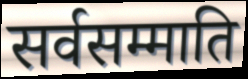
सर्वसम्माति